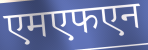
एमएफएन